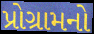
પ્રોગ્રામનો